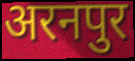
अरनपुर